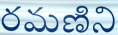
రమణిని